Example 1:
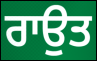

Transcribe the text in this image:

ਰਾਉਤ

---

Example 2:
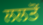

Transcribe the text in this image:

ਲਲਤੋਂ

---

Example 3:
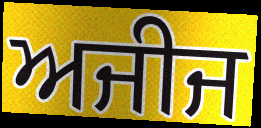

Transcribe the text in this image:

ਅਜੀਜ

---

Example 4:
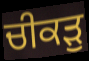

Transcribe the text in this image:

ਚੀਕੜੁ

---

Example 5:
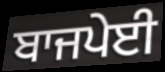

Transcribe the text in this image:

ਬਾਜਪੇਈ